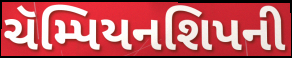
ચૅમ્પિયનશિપની